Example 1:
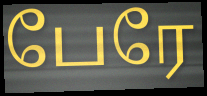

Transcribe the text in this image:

பேரே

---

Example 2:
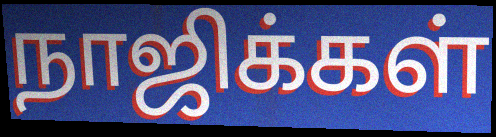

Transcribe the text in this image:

நாஜிக்கள்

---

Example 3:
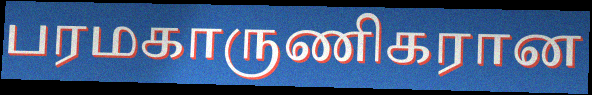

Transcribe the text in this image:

பரமகாருணிகரான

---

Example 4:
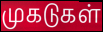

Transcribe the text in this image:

முகடுகள்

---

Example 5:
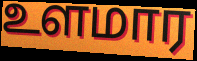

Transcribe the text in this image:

உளமார